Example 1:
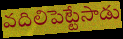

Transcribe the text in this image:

వదిలిపెట్టేసాడు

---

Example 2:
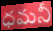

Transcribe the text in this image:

ధమనీ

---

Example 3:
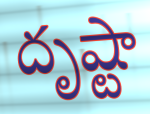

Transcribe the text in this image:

దృష్టా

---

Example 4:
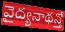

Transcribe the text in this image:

వైద్యనాథన్తో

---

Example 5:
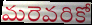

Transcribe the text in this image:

మరెవరికో